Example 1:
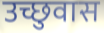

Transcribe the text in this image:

उच्छुवास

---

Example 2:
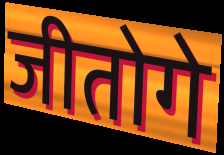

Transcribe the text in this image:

जीतोगे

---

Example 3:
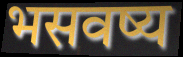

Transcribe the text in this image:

भसवष्य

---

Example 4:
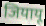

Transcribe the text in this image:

जियायू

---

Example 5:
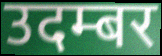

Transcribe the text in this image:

उदम्बर